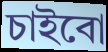
চাইবো